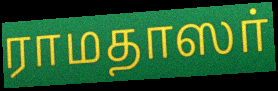
ராமதாஸர்